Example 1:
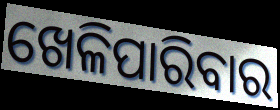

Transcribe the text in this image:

ଖେଳିପାରିବାର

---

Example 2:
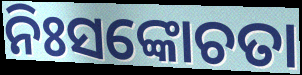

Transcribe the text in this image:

ନିଃସଙ୍କୋଚତା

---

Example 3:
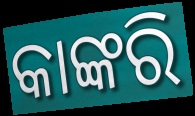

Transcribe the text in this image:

କାଙ୍କରି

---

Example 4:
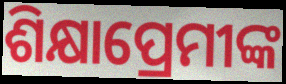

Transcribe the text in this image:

ଶିକ୍ଷାପ୍ରେମୀଙ୍କ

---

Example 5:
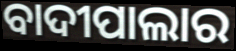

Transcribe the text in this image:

ବାଦୀପାଲାର